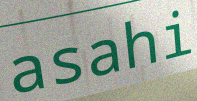
asahi